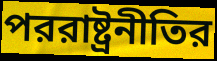
পররাষ্ট্রনীতির